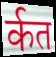
र्कत